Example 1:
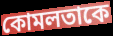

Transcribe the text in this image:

কোমলতাকে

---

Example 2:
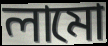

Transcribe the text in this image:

লামো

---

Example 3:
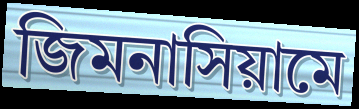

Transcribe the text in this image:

জিমনাসিয়ামে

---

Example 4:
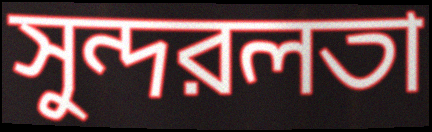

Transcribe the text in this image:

সুন্দরলতা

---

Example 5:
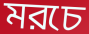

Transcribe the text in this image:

মরচে